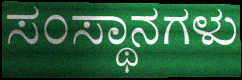
ಸಂಸ್ಥಾನಗಳು